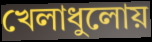
খেলাধুলোয়